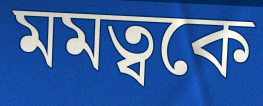
মমত্বকে